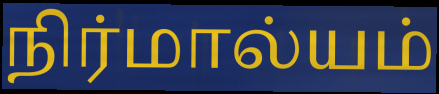
நிர்மால்யம்